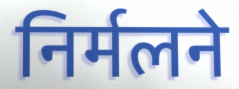
निर्मलने